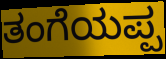
ತಂಗೆಯಪ್ಪ